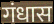
गंधास